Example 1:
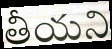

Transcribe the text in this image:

తీయని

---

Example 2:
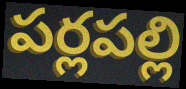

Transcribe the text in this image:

పర్లపల్లి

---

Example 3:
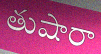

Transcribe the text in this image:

తుషారా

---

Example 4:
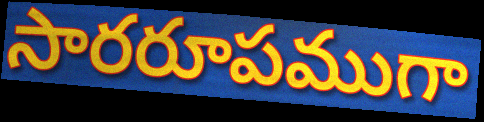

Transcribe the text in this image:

సారరూపముగా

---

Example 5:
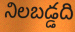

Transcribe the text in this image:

నిలబడ్డది